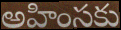
అహింసకు